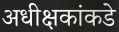
अधीक्षकांकडे